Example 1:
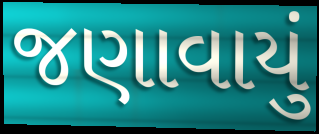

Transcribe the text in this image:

જણાવાયું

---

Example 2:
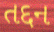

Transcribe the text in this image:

તદ્દન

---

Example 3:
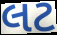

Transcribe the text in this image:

લટ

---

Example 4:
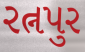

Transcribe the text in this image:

રત્નપુર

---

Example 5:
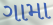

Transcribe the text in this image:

ગામા